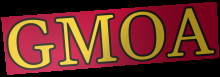
GMOA